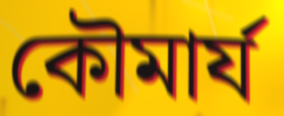
কৌমার্য